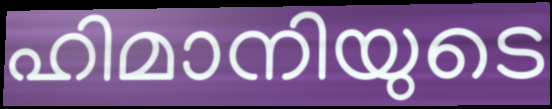
ഹിമാനിയുടെ